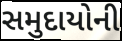
સમુદાયોની